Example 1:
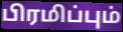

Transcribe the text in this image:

பிரமிப்பும்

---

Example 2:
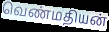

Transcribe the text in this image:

வெண்மதியன்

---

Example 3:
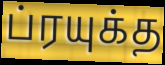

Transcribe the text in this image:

ப்ரயுக்த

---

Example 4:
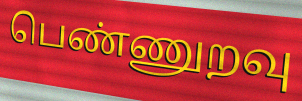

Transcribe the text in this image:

பெண்ணுறவு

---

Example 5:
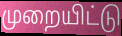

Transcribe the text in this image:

முறையிட்டு